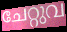
ചേറ്റുവ